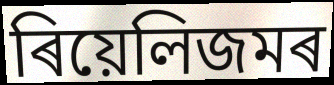
ৰিয়েলিজমৰ